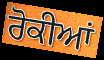
ਰੋਕੀਆਂ